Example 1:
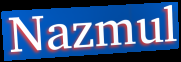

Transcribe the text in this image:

Nazmul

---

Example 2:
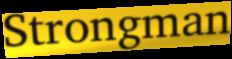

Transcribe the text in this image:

Strongman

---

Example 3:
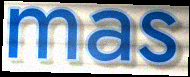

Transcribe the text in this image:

mas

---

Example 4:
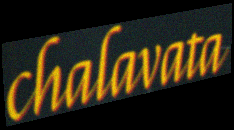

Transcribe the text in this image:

chalavata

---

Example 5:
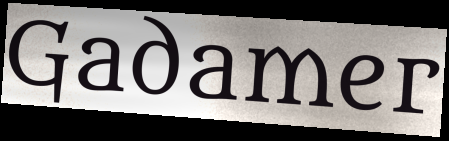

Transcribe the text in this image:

Gadamer